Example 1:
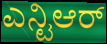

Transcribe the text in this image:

ಎನ್ಟಿಆರ್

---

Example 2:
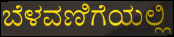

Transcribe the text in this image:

ಬೆಳವಣಿಗೆಯಲ್ಲಿ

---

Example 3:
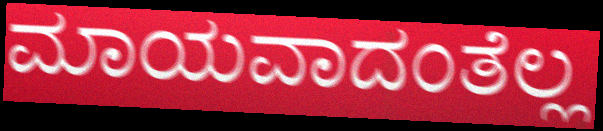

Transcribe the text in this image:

ಮಾಯವಾದಂತೆಲ್ಲ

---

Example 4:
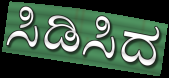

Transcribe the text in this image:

ಸಿಡಿಸಿದ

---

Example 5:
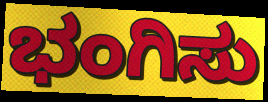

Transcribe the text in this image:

ಭಂಗಿಸು